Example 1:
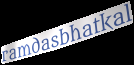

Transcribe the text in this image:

ramdasbhatkal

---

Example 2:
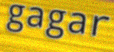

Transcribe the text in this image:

gagar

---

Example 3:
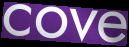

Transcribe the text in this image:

cove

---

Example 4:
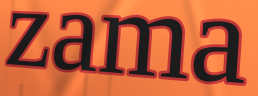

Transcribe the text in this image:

zama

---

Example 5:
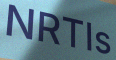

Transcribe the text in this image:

NRTIs